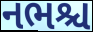
નભશ્ચ